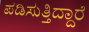
ಪಡಿಸುತ್ತಿದ್ದಾರೆ